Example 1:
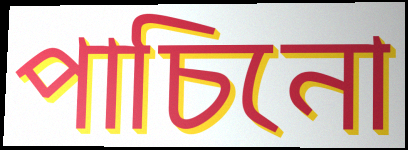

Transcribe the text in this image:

পাচিনো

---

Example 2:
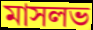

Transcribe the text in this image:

মাসলভ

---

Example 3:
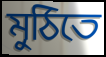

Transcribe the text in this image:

মুঠিতে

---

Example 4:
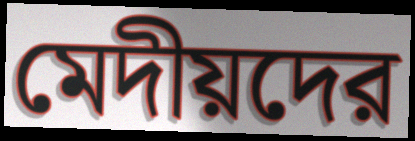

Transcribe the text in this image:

মেদীয়দের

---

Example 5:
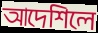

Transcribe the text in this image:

আদেশিলে